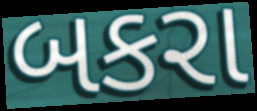
બકરા